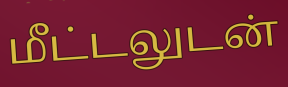
மீட்டலுடன்